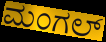
ಮಂಗಲ್